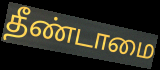
தீண்டாமை